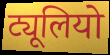
ट्यूलियो